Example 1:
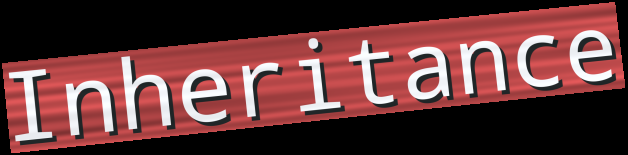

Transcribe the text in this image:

Inheritance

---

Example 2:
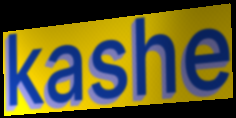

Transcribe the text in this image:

kashe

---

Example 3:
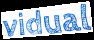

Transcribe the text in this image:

vidual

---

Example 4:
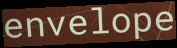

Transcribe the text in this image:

envelope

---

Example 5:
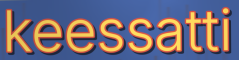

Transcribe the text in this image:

keessatti